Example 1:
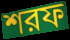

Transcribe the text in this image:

শরফ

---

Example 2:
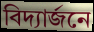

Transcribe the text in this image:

বিদ্যার্জনে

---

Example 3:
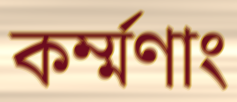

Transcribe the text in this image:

কর্ম্মণাং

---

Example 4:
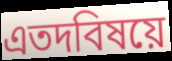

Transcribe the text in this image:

এতদবিষয়ে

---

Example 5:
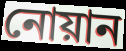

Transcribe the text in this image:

নোয়ান